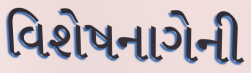
વિશેષનાગેની